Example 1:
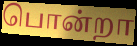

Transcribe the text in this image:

பொன்றா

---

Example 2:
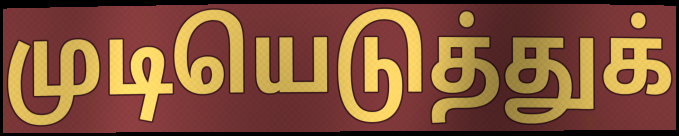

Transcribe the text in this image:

முடியெடுத்துக்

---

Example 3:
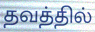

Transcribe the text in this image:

தவத்தில்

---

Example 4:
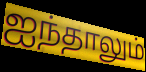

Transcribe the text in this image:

ஐந்தாலும்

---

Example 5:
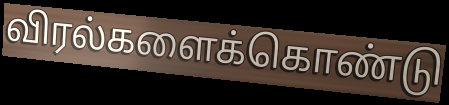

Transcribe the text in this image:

விரல்களைக்கொண்டு